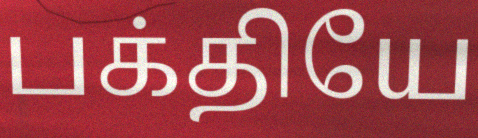
பக்தியே